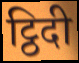
ट्ठिदी